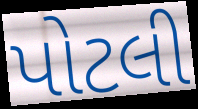
પોટલી